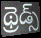
థ్రెడ్స్